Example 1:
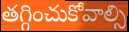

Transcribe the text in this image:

తగ్గించుకోవాల్సి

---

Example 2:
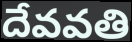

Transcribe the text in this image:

దేవవతి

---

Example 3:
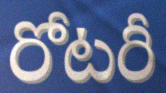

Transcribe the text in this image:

రోటరీ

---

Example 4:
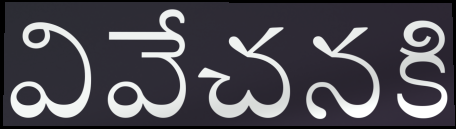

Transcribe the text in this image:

వివేచనకి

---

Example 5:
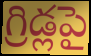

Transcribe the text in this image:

గ్రిడ్లపై